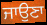
ਜਾਉਣਾ